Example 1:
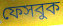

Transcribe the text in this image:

ফেসবুক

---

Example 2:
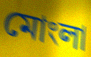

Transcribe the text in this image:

মোংলা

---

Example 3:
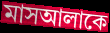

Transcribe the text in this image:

মাসআলাকে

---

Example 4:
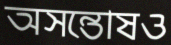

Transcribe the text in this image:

অসন্তোষও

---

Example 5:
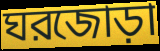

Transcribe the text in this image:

ঘরজোড়া